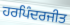
ਹਰਪਿੰਦਰਜੀਤ